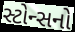
સ્ટોન્સનો